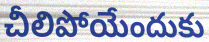
చీలిపోయేందుకు